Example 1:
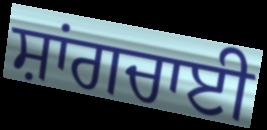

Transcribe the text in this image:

ਸ਼ਾਂਗਚਾਈ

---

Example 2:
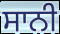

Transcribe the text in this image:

ਸਾਨੀ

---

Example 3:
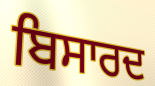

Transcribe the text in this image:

ਬਿਸਾਰਦ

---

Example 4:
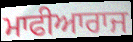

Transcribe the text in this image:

ਮਾਫੀਆਰਾਜ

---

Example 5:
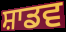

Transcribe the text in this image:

ਸ਼ਾਡਵ